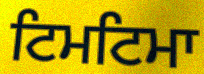
ਟਿਮਟਿਮਾ